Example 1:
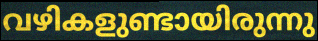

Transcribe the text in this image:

വഴികളുണ്ടായിരുന്നു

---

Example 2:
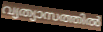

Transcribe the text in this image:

വ്യത്യാസത്തിൽ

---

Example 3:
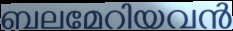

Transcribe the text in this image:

ബലമേറിയവൻ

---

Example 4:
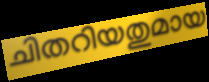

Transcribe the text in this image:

ചിതറിയതുമായ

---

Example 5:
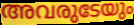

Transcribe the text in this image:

അവരുടേയും